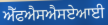
ਐੱਫਐਸਐਸਏਆਈ